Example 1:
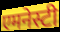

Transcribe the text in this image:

एमनेस्टी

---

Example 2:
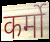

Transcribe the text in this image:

कर्मो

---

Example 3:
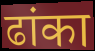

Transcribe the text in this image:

ढांका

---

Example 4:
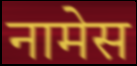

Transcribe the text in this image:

नामेस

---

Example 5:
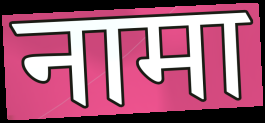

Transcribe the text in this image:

नामा